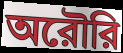
অরৌরি